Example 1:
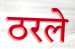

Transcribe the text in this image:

ठरले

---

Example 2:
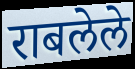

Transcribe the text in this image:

राबलेले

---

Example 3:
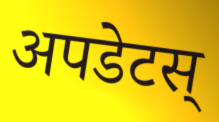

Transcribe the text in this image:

अपडेटस्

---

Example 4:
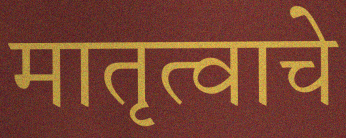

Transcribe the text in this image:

मातृत्वाचे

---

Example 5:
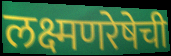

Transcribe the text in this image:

लक्ष्मणरेषेची